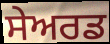
ਸੇਅਰਡ